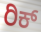
ರಿಕ್